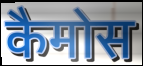
कैमोस